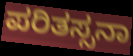
ಪರಿತಸ್ಸನಾ